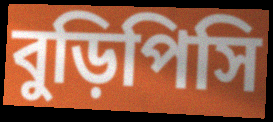
বুড়িপিসি